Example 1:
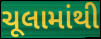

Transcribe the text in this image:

ચૂલામાંથી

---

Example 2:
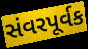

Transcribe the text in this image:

સંવરપૂર્વક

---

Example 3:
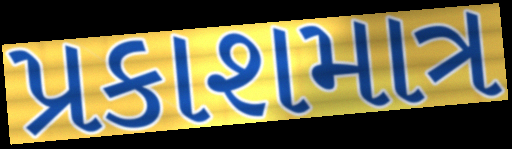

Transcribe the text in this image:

પ્રકાશમાત્ર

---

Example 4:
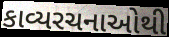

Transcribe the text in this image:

કાવ્યરચનાઓથી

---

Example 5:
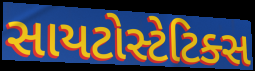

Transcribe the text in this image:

સાયટોસ્ટેટિક્સ